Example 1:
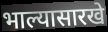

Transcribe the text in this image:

भाल्यासारखे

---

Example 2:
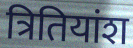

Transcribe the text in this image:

त्रितियांश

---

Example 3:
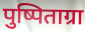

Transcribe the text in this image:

पुष्पिताग्रा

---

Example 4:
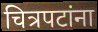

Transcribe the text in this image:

चित्रपटांना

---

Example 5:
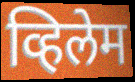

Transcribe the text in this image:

व्हिलेम